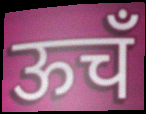
ऊचँ